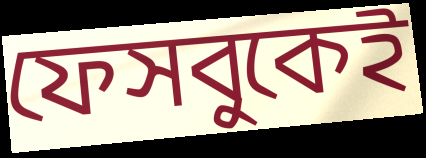
ফেসবুকেই